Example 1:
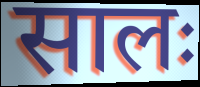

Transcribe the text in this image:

सालः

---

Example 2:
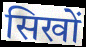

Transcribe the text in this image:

सिखों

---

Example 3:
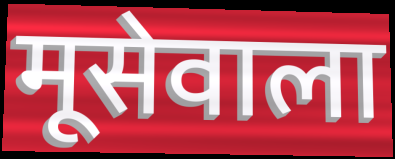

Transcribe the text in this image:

मूसेवाला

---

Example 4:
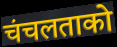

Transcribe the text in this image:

चंचलताको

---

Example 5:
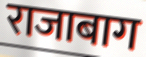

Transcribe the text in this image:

राजाबाग